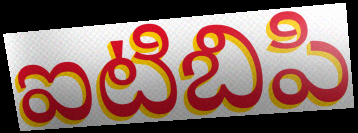
ఐటిబిపి